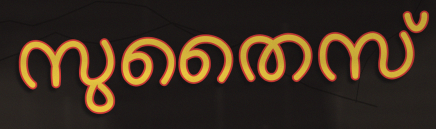
സുതൈസ്